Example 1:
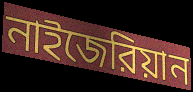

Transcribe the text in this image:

নাইজেরিয়ান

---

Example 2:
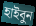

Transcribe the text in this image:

হাইবুন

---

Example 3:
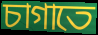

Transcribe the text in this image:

চাগাতে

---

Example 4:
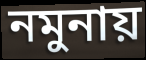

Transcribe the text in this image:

নমুনায়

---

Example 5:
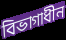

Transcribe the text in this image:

বিভাগাধীন